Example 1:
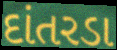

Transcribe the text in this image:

દાંતરડા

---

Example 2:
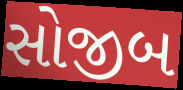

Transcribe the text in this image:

સોજીબ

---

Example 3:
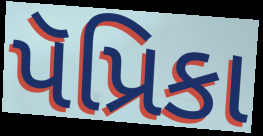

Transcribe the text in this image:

પૅપ્રિકા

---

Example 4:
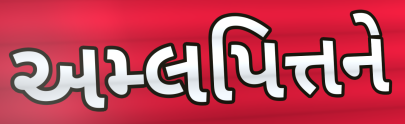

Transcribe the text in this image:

અમ્લપિત્તને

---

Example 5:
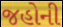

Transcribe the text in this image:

જહોની